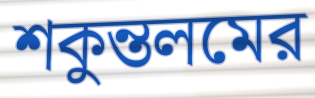
শকুন্তলমের